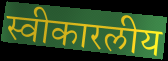
स्वीकारलीय